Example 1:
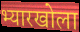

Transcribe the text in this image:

भ्यारखोला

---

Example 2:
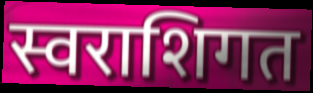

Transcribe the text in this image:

स्वराशिगत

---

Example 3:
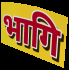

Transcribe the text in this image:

भागि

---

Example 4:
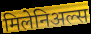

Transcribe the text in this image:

मिलेनिअल्स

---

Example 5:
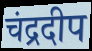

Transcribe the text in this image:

चंद्रदीप